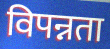
विपन्नता